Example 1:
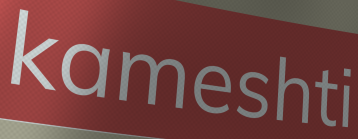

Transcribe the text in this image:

kameshti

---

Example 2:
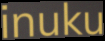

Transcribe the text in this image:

inuku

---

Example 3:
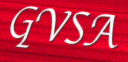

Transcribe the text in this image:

GVSA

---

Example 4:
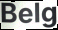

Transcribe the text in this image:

Belg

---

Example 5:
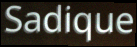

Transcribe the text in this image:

Sadique